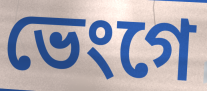
ভেংগে